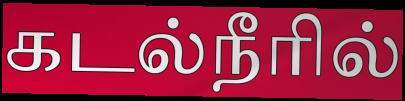
கடல்நீரில்